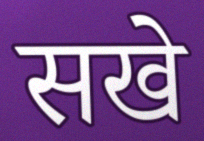
सखे